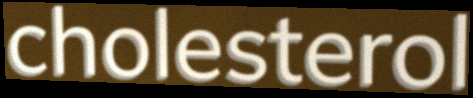
cholesterol